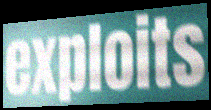
exploits